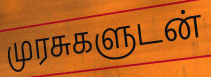
முரசுகளுடன்